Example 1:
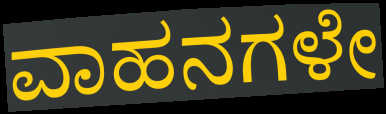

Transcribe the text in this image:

ವಾಹನಗಳೇ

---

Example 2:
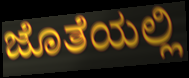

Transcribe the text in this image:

ಜೊತೆಯಲ್ಲಿ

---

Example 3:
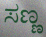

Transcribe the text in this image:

ಸಣ್ಣ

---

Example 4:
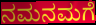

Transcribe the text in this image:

ನಮನಮಗೆ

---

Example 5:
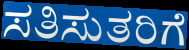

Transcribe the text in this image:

ಸತಿಸುತರಿಗೆ